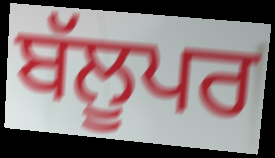
ਬੱਲੂਪਰ